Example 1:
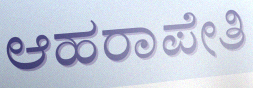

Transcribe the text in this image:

ಆಹರಾಪೇತಿ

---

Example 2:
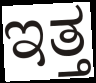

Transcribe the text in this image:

ಇತ್ತ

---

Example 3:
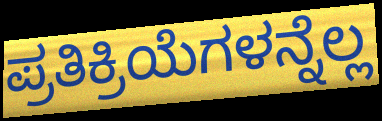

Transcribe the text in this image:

ಪ್ರತಿಕ್ರಿಯೆಗಳನ್ನೆಲ್ಲ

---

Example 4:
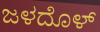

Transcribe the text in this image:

ಜಳದೊಳ್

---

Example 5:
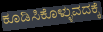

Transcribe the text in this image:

ಕೂಡಿಸಿಕೊಳ್ಳುವದಕ್ಕೆ